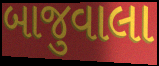
બાજુવાલા